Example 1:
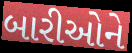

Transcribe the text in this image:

બારીઓને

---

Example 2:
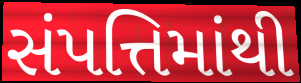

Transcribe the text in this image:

સંપત્તિમાંથી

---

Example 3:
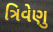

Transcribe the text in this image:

ત્રિવેણુ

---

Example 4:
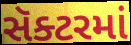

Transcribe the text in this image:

સૅક્ટરમાં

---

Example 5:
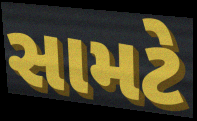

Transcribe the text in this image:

સામટે